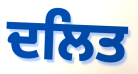
ਦਲਿਤ